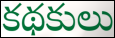
కథకులు